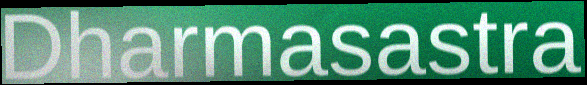
Dharmasastra